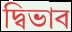
দ্বিভাব